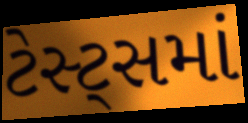
ટેસ્ટ્સમાં